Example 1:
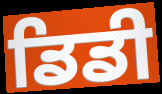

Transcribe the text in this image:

ਡਿਡੀ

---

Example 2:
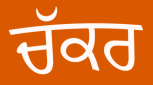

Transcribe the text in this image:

ਚੱਕਰ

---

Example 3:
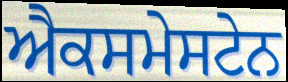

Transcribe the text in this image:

ਐਕਸਮੇਸਟੇਨ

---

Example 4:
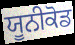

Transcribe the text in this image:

ਯੂਨੀਕੋਡ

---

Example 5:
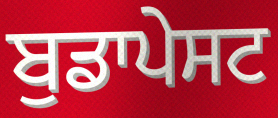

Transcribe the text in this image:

ਬੁਡਾਪੇਸਟ